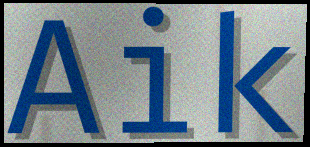
Aik